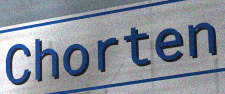
Chorten